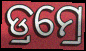
ଡ୍ରମ୍ରେ